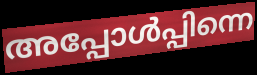
അപ്പോൾപ്പിന്നെ